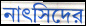
নাৎসিদের